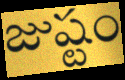
జుష్టం